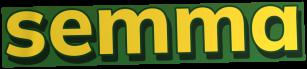
semma